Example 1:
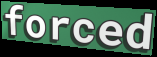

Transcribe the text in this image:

forced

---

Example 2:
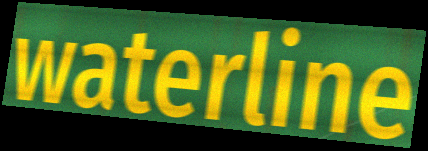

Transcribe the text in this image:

waterline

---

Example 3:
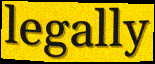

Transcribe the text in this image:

legally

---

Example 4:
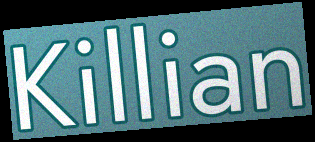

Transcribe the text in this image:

Killian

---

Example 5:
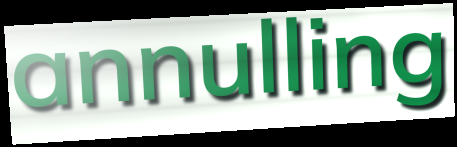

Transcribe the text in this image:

annulling